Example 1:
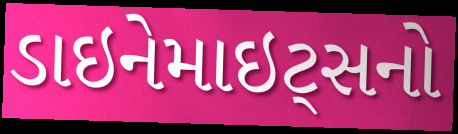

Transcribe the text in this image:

ડાઇનેમાઇટ્સનો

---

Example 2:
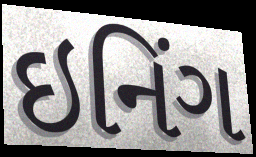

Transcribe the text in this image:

ઇનિંગ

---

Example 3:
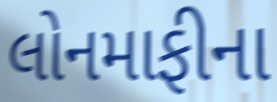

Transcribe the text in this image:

લોનમાફીના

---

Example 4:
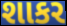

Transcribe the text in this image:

શાકર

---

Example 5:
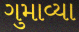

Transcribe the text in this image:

ગુમાવ્યા